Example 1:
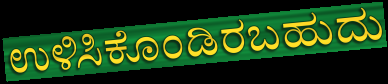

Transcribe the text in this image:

ಉಳಿಸಿಕೊಂಡಿರಬಹುದು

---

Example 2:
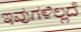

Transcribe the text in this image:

ಇವುಗಳಿಲ್ಲದೆ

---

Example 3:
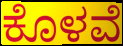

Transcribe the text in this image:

ಕೊಳವೆ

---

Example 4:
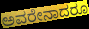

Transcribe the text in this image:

ಅವರೇನಾದರೂ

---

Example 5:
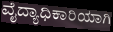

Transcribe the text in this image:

ವೈದ್ಯಾಧಿಕಾರಿಯಾಗಿ